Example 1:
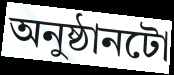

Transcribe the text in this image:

অনুষ্ঠানটো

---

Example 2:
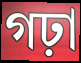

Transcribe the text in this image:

গঢ়া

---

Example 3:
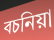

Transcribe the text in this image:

বচনিয়া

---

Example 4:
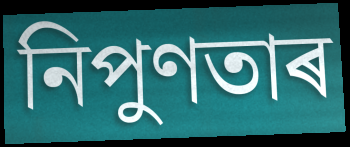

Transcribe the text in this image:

নিপুণতাৰ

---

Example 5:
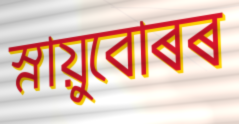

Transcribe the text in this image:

স্নায়ুবোৰৰ